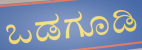
ಒಡಗೂಡಿ